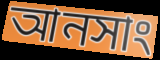
আনসাং